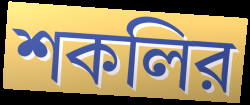
শকলির